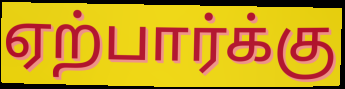
ஏற்பார்க்கு